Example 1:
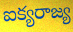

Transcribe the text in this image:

ఐక్యరాజ్య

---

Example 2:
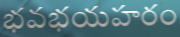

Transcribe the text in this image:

భవభయహరం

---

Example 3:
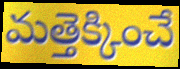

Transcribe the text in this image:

మత్తెక్కించే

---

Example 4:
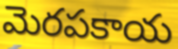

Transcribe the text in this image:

మెరపకాయ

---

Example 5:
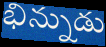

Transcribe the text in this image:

భిన్నుడు